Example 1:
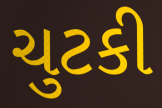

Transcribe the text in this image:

ચુટકી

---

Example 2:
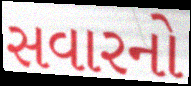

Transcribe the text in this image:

સવારનો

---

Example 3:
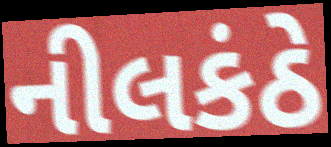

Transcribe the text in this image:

નીલકંઠે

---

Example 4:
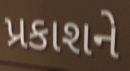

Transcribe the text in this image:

પ્રકાશને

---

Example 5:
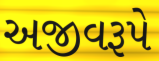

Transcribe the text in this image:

અજીવરૂપે